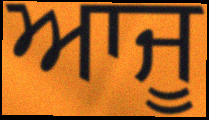
ਆਜੂ